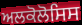
ਅਲਕੋਲੋਸਿਸ